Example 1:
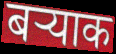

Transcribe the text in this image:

बऱ्याक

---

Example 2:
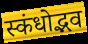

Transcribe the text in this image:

स्कंधोद्भव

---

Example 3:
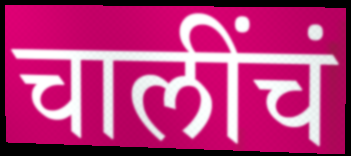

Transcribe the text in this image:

चालींचं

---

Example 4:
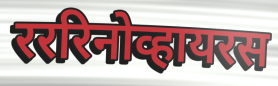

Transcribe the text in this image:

रररिनोव्हायरस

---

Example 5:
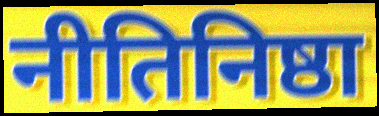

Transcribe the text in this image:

नीतिनिष्ठा